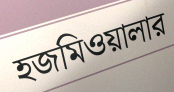
হজমিওয়ালার